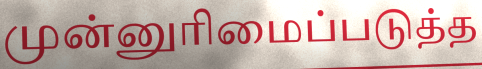
முன்னுரிமைப்படுத்த